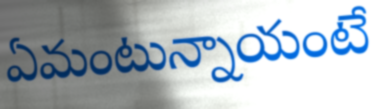
ఏమంటున్నాయంటే